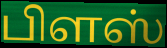
பிளஸ்